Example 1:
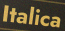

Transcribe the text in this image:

Italica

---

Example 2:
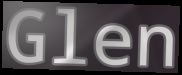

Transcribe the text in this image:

Glen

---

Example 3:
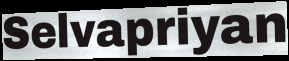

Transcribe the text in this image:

Selvapriyan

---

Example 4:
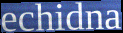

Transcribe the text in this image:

echidna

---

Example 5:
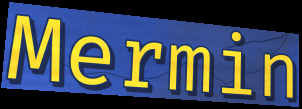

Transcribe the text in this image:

Mermin